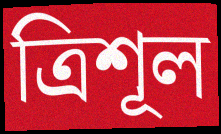
ত্ৰিশূল